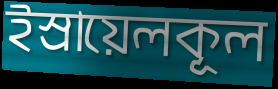
ইস্রায়েলকূল